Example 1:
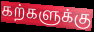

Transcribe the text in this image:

கற்களுக்கு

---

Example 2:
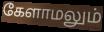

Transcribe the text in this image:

கேளாமலும்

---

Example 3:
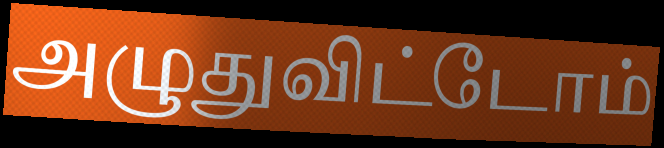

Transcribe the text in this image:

அழுதுவிட்டோம்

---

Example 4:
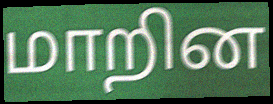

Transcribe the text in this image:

மாறின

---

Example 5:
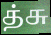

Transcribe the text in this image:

த்சு